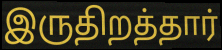
இருதிறத்தார்